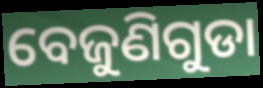
ବେଜୁଣିଗୁଡା